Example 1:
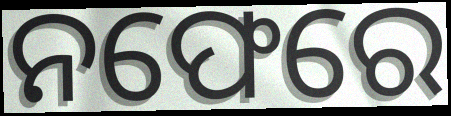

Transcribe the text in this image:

ନଫେରେ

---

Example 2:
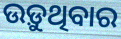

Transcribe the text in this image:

ଉଡ଼ୁଥିବାର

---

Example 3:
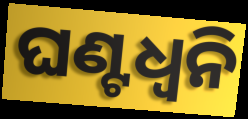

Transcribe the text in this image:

ଘଣ୍ଟଧ୍ୱନି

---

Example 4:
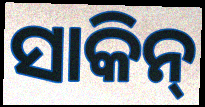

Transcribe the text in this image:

ସାକିନ୍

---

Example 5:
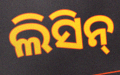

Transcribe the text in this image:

ଲିସିନ୍